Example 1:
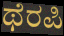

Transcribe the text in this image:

ಥೆರಪಿ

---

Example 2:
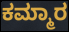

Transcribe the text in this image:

ಕಮ್ಮಾರ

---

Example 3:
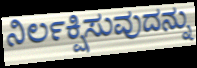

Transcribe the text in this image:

ನಿರ್ಲಕ್ಷಿಸುವುದನ್ನು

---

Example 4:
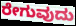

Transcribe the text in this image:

ರೇಗುವುದು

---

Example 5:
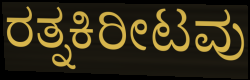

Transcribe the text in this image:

ರತ್ನಕಿರೀಟವು